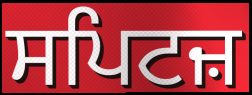
ਸਪਿਟਜ਼